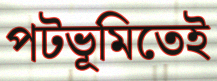
পটভূমিতেই